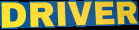
DRIVER